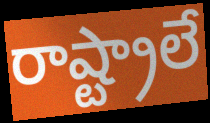
రాష్ట్రాలే